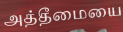
அத்தீமையை